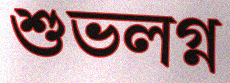
শুভলগ্ন